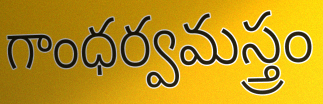
గాంధర్వమస్త్రం